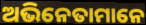
ଅଭିନେତାମାନେ